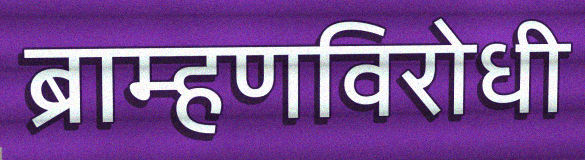
ब्राम्हणविरोधी